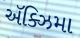
ઍક્ઝિમા